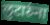
लुटारुंना